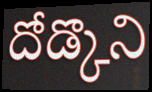
దోడ్కొని